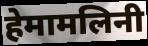
हेमामलिनी